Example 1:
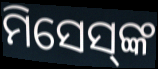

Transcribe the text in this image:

ମିସେସ୍‌ଙ୍କ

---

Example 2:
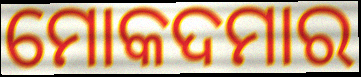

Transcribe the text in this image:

ମୋକଦମାର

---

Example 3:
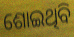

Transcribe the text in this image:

ଶୋଇଥିବି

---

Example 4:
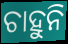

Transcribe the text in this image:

ଚାହୁନି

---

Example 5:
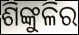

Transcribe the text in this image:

ଶିଙ୍କୁଳିର